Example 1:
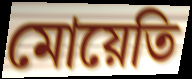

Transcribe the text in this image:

মোয়েতি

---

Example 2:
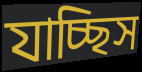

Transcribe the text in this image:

যাচ্ছিস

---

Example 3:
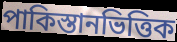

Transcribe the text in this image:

পাকিস্তানভিত্তিক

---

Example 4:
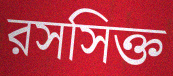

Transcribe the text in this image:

রসসিক্ত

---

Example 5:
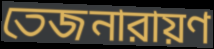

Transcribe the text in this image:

তেজনারায়ণ